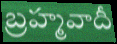
బ్రహ్మవాదీ